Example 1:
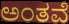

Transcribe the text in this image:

ಅಂತವೆ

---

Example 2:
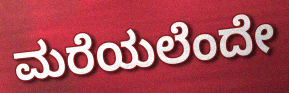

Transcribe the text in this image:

ಮರೆಯಲೆಂದೇ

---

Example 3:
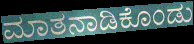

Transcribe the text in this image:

ಮಾತನಾಡಿಕೊಂಡು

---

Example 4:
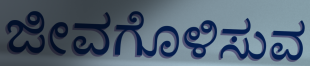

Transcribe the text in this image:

ಜೀವಗೊಳಿಸುವ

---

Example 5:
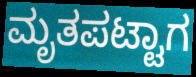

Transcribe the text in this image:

ಮೃತಪಟ್ಟಾಗ